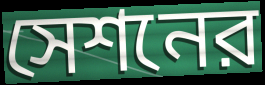
সেশনের